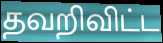
தவறிவிட்ட